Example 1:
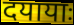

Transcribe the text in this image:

दयायाः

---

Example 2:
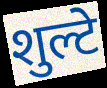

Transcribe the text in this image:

शुल्टे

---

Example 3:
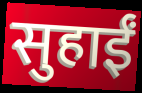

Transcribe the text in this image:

सुहाईं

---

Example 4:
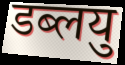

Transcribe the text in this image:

डब्लयु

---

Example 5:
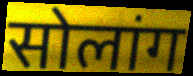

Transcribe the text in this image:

सोलांग